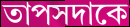
তাপসদাকে